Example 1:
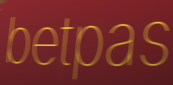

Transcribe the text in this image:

betpas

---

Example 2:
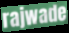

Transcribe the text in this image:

rajwade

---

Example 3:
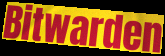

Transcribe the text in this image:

Bitwarden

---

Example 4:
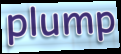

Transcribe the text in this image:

plump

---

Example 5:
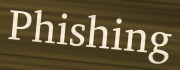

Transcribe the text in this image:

Phishing